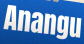
Anangu